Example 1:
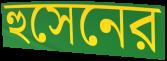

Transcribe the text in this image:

হুসেনের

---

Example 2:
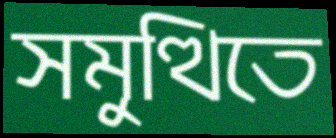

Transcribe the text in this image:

সমুত্থিতে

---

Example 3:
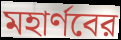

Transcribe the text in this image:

মহার্ণবের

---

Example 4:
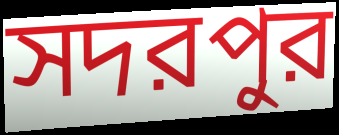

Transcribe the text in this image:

সদরপুর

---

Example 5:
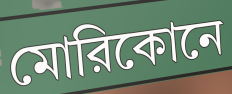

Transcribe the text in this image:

মোরিকোনে